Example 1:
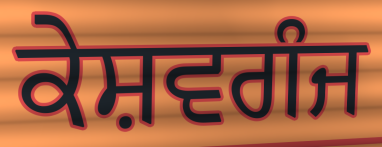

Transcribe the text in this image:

ਕੇਸ਼ਵਗੰਜ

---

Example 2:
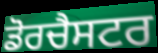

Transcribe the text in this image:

ਡੋਰਚੈਸਟਰ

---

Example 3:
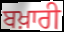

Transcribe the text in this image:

ਬਖ਼ਾਰੀ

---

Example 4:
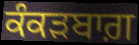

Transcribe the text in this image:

ਕੰਕੜਬਾਗ਼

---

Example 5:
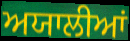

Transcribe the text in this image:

ਅਯਾਲੀਆਂ